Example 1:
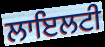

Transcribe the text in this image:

ਲਾਇਲਟੀ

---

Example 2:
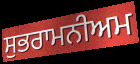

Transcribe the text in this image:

ਸੁਭਰਾਮਨੀਅਮ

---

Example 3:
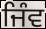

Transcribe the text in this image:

ਜਿੰਵ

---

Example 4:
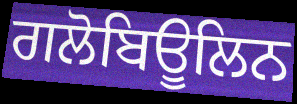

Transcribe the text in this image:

ਗਲੋਬਿਊਲਿਨ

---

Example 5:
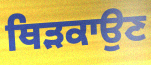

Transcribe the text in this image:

ਥਿੜਕਾਉਣ